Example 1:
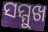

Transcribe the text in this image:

ସମ୍ମୁଖ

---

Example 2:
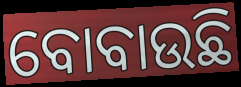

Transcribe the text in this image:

ବୋବାଉଛି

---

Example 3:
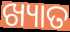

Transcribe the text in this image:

ଖ୍ୟାତ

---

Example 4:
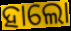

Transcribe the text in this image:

ହାଲୋ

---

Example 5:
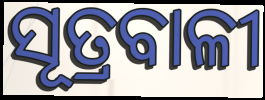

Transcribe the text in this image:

ସୂତ୍ରବାଳୀ